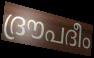
ദ്രൗപദീം